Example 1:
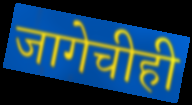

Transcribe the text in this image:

जागेचीही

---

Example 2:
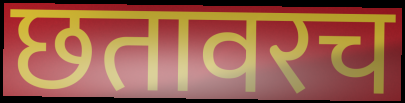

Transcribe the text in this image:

छतावरच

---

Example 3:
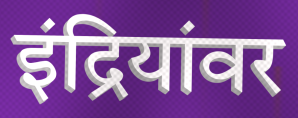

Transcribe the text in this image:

इंद्रियांवर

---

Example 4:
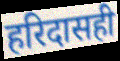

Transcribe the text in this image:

हरिदासही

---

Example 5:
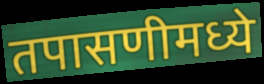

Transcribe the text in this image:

तपासणीमध्ये